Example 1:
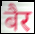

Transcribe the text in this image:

बैर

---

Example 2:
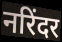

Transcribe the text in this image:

नरिंदर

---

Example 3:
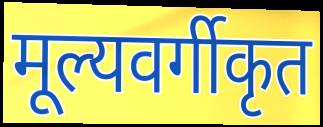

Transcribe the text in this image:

मूल्यवर्गीकृत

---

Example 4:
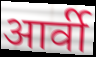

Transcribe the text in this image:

आर्वी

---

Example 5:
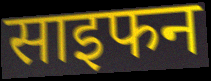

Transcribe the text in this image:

साइफन